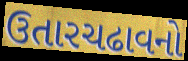
ઉતારચઢાવનો